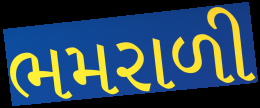
ભમરાળી